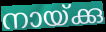
നായ്‌ക്കു